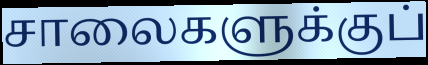
சாலைகளுக்குப்